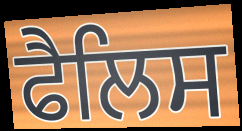
ਫੈਲਿਸ